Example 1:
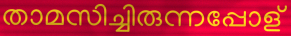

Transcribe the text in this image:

താമസിച്ചിരുന്നപ്പോള്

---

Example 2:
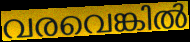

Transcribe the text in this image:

വരവെങ്കിൽ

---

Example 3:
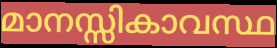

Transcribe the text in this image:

മാനസ്സികാവസ്ഥ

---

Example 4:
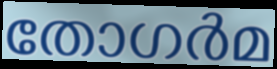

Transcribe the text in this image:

തോഗർമ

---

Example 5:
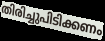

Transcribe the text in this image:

തിരിച്ചുപിടിക്കണം